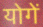
योगें